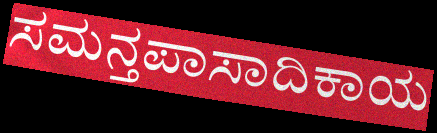
ಸಮನ್ತಪಾಸಾದಿಕಾಯ